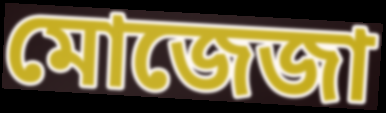
মোজেজা